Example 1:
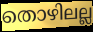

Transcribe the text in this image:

തൊഴിലല്ല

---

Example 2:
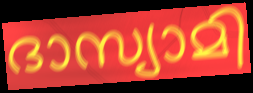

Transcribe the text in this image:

ദാസ്യാമി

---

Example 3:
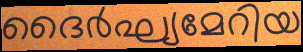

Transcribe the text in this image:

ദൈർഘ്യമേറിയ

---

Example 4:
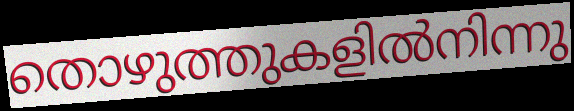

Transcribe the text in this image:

തൊഴുത്തുകളിൽനിന്നു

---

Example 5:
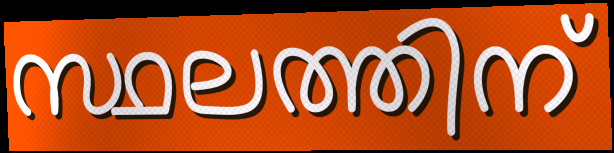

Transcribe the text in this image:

സ്ഥലത്തിന്